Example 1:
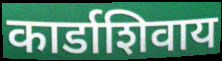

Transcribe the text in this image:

कार्डाशिवाय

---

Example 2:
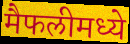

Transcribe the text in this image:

मैफलीमध्ये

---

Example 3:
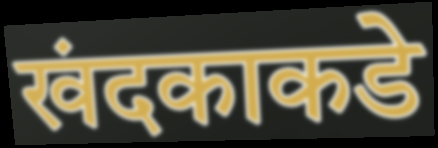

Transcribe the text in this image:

खंदकाकडे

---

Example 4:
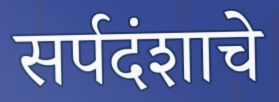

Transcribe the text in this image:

सर्पदंशाचे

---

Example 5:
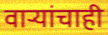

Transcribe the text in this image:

वाऱ्यांचाही